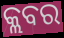
କ୍ଲବର